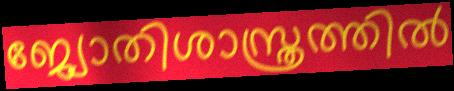
ജ്യോതിശാസ്ത്രത്തിൽ